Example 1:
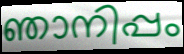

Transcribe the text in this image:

ഞാനിപ്പം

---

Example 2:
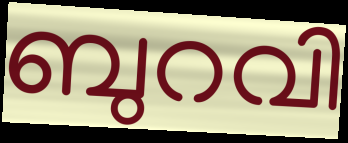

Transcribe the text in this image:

ബുറവി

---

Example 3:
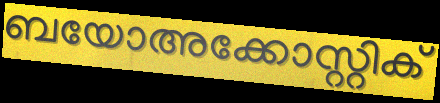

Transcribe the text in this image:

ബയോഅക്കോസ്റ്റിക്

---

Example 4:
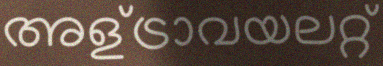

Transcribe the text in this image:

അള്ട്രാവയലറ്റ്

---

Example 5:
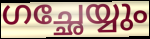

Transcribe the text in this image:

ഗച്ഛേയ്യും